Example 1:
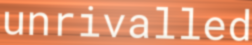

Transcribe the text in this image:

unrivalled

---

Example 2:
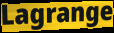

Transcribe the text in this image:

Lagrange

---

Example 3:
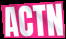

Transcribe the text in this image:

ACTN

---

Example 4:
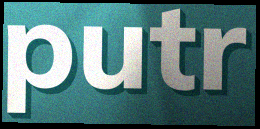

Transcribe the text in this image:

putr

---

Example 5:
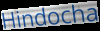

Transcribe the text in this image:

Hindocha